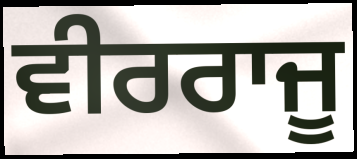
ਵੀਰਰਾਜੂ